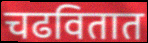
चढवितात